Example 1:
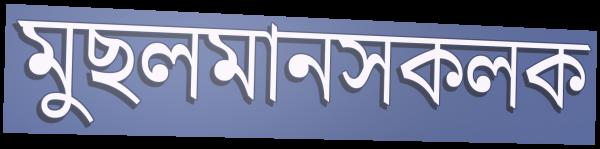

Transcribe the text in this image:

মুছলমানসকলক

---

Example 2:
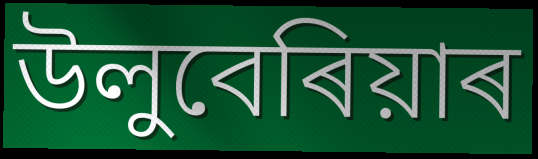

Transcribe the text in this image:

উলুবেৰিয়াৰ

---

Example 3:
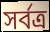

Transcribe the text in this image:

সৰ্বত্ৰ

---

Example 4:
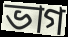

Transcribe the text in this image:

ভাগ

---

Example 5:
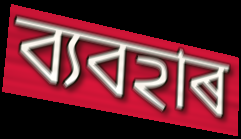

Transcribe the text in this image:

ব্যবহাৰ